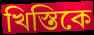
খিস্তিকে